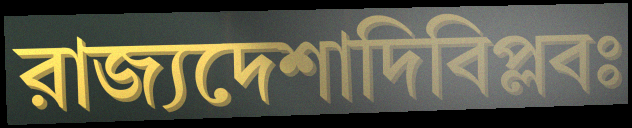
রাজ্যদেশাদিবিপ্লবঃ